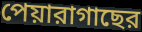
পেয়ারাগাছের